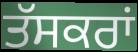
ਤੱਸਕਰਾਂ